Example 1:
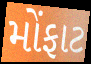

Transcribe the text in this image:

મોંફાટ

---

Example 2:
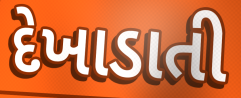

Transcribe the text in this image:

દેખાડાતી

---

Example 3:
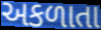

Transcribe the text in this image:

અકળાતા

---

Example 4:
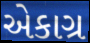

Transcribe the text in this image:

એકાગ્ર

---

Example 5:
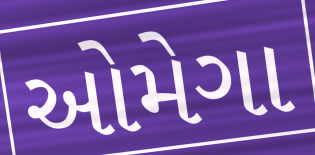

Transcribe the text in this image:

ઓમેગા